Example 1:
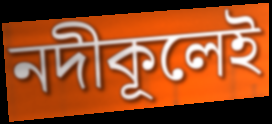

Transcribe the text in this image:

নদীকূলেই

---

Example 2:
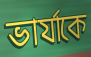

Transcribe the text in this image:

ভার্যাকে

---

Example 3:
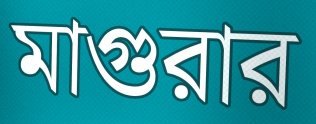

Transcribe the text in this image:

মাগুরার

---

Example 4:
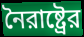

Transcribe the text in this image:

নৈরাষ্ট্রের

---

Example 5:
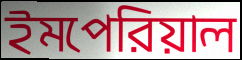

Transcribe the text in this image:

ইমপেরিয়াল